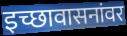
इच्छावासनांवर